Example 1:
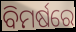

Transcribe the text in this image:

ବିମର୍ଷରେ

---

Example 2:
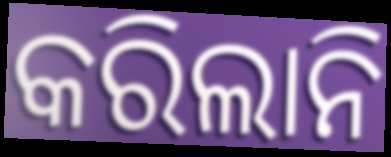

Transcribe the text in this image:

କରିଲାନି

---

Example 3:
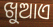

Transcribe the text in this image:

ଖୁଆଏ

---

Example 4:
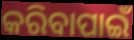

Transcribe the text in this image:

କରିବାପାଇଁ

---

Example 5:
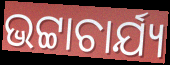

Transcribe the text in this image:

ଭଟ୍ଟାଚାର୍ଯ୍ୟ